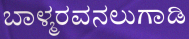
ಬಾಳ್ಮರವನಲುಗಾಡಿ